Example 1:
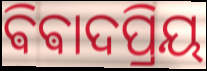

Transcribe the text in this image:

ଵିଵାଦପ୍ରିୟ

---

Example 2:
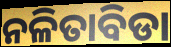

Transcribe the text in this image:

ନଳିତାବିଡା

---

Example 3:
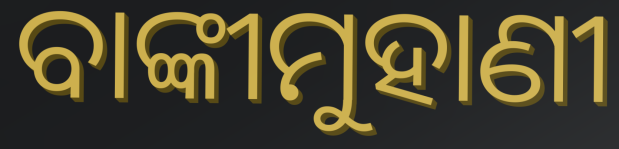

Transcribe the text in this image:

ବାଙ୍କୀମୁହାଣୀ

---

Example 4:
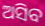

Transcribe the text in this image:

ଅସିବ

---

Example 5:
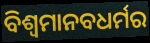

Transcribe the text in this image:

ବିଶ୍ବମାନବଧର୍ମର